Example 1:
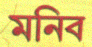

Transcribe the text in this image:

মনিব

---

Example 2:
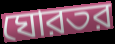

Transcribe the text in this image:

ঘোরতর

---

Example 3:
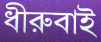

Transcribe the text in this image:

ধীরুবাই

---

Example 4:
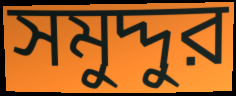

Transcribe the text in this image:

সমুদ্দুর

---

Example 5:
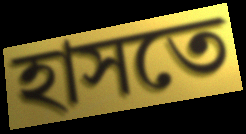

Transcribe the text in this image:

হাসতে